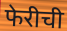
फेरीची